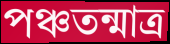
পঞ্চতন্মাত্র